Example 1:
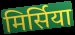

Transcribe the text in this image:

मिर्सिया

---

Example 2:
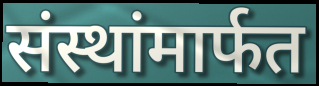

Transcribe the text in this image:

संस्थांमार्फत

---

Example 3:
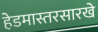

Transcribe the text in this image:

हेडमास्तरसारखे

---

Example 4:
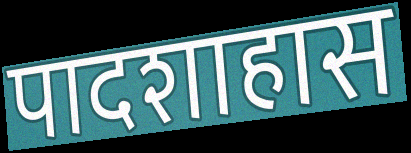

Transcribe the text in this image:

पादशाहास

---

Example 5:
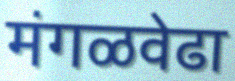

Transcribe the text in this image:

मंगळवेढा